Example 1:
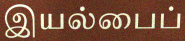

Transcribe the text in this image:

இயல்பைப்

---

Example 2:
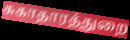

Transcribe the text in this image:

சுகாதாரத்துறை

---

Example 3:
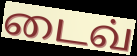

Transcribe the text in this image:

டைவ்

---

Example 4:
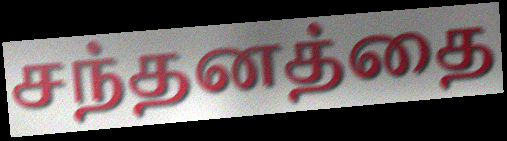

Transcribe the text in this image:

சந்தனத்தை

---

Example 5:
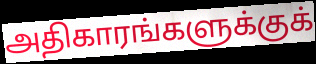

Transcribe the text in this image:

அதிகாரங்களுக்குக்